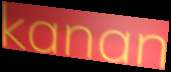
kanan